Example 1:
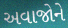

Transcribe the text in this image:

અવાજોને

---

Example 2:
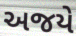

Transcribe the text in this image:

અજયે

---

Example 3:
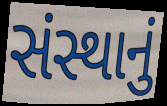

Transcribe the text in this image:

સંસ્થાનું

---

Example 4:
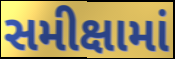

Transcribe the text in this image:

સમીક્ષામાં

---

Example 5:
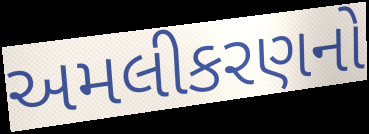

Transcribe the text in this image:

અમલીકરણનો